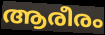
ആരീരം